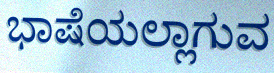
ಭಾಷೆಯಲ್ಲಾಗುವ